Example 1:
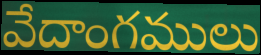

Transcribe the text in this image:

వేదాంగములు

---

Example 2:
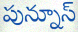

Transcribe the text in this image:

పున్నూస్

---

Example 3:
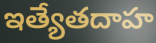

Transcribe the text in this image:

ఇత్యేతదాహ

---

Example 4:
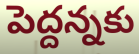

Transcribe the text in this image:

పెద్దన్నకు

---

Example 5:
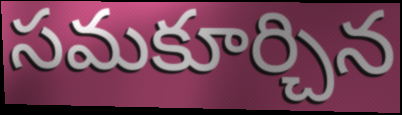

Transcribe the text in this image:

సమకూర్చిన